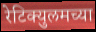
रेटिक्युलमच्या